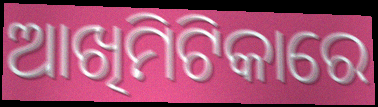
ଆଖିମିଟିକାରେ